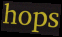
hops